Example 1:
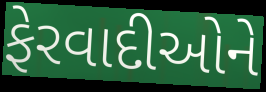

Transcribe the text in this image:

ફેરવાદીઓને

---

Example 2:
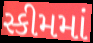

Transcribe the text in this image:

સ્કીમમાં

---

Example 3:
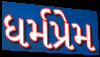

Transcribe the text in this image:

ધર્મપ્રેમ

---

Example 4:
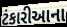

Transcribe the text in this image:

ટંકારીઆના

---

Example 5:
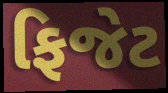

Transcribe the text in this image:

ફિજેટ